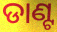
ଡାଣ୍ଟ